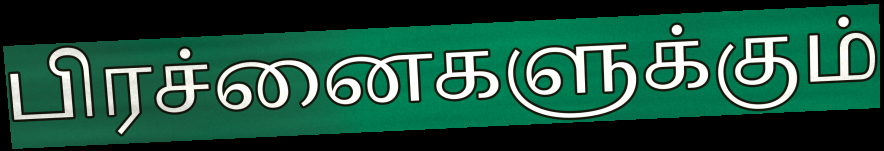
பிரச்னைகளுக்கும்